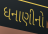
ધનાણીનો